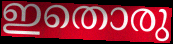
ഇതൊരു